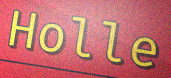
Holle